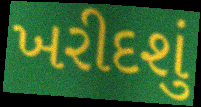
ખરીદશું